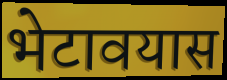
भेटावयास